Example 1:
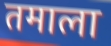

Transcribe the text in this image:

तमाला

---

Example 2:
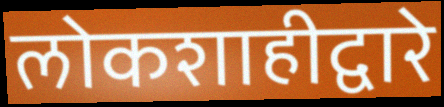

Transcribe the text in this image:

लोकशाहीद्वारे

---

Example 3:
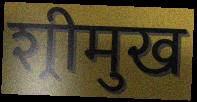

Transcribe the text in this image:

श्रीमुख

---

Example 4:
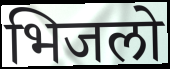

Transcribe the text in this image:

भिजलो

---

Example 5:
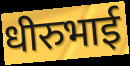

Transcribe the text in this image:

धीरुभाई